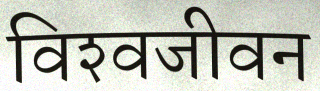
विश्वजीवन